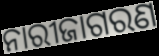
ନାରୀଜାଗରଣ